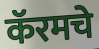
कॅरमचे